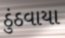
ઠુંઠવાયા